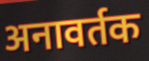
अनावर्तक